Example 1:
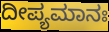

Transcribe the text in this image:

ದೀಪ್ಯಮಾನಃ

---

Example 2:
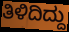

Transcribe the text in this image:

ತಿಳಿದಿದ್ದು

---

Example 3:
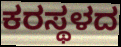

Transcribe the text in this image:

ಕರಸ್ಥಳದ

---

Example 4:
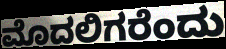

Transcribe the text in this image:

ಮೊದಲಿಗರೆಂದು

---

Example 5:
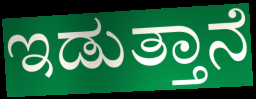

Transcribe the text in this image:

ಇಡುತ್ತಾನೆ